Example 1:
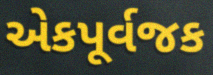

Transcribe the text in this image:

એકપૂર્વજક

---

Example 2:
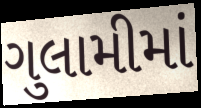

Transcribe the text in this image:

ગુલામીમાં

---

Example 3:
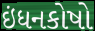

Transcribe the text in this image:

ઇંધનકોષો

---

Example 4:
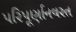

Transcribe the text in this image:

પરિપૂર્ણાનવરત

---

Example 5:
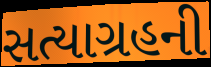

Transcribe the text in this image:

સત્યાગ્રહની